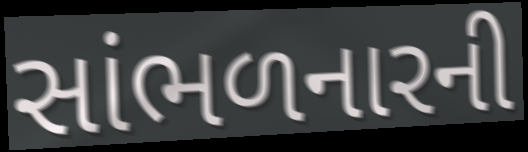
સાંભળનારની